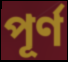
পূর্ণ